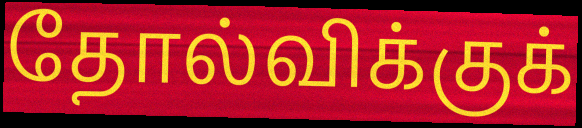
தோல்விக்குக்